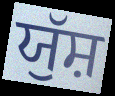
ਯੁੱਸ਼